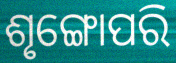
ଶୃଙ୍ଗୋପରି